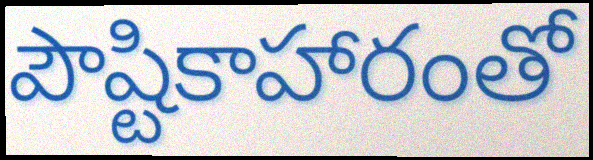
పౌష్టికాహారంతో